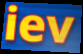
iev